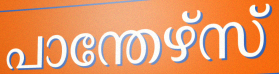
പാന്തേഴ്സ്